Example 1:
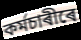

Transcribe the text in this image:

কৰ্মচাৰীৰে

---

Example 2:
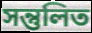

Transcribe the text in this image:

সন্তুলিত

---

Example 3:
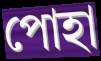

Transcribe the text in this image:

পোহা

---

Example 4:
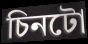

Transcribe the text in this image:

চিনটো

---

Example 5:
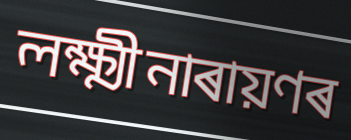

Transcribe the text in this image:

লক্ষ্মীনাৰায়ণৰ